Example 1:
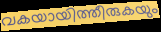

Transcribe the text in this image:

വകയായിത്തീരുകയും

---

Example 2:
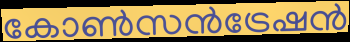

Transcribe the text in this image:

കോൺസൻട്രേഷൻ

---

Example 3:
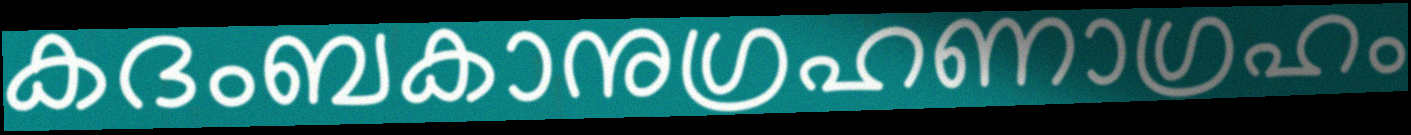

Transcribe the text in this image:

കദംബകാനുഗ്രഹണാഗ്രഹം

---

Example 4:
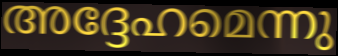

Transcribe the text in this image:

അദ്ദേഹമെന്നു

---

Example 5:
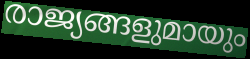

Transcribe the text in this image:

രാജ്യങ്ങളുമായും